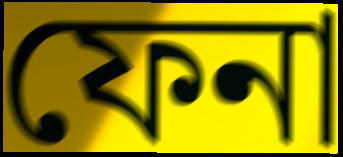
ফেনা